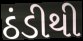
ઠંડીથી